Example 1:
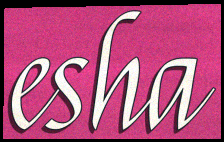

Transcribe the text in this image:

esha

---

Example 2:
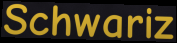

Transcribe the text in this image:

Schwariz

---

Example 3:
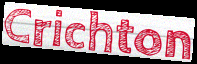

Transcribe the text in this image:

Crichton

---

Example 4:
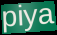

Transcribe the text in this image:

piya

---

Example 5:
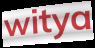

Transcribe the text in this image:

witya